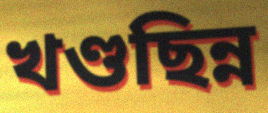
খণ্ডছিন্ন